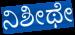
ನಿಶೀಥೇ